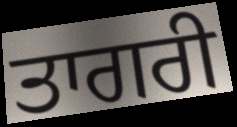
ਤਾਗਰੀ